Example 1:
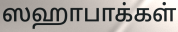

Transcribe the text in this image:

ஸஹாபாக்கள்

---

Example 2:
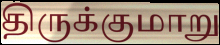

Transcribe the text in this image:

திருக்குமாறு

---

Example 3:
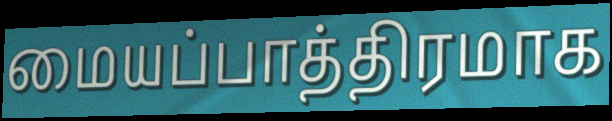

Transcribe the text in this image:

மையப்பாத்திரமாக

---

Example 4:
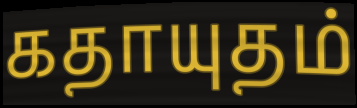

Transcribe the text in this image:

கதாயுதம்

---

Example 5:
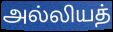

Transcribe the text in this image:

அல்லியத்